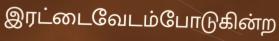
இரட்டைவேடம்போடுகின்ற